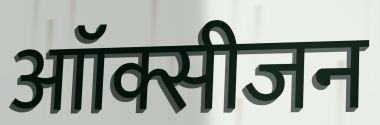
आॉक्सीजन